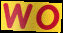
wo